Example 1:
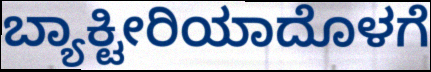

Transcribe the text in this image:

ಬ್ಯಾಕ್ಟೀರಿಯಾದೊಳಗೆ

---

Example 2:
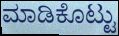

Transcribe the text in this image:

ಮಾಡಿಕೊಟ್ಟು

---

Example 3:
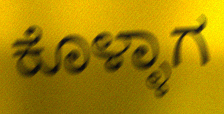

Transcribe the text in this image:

ಕೊಳ್ಳಾಗ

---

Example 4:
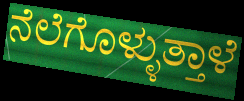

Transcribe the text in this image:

ನೆಲೆಗೊಳ್ಳುತ್ತಾಳೆ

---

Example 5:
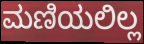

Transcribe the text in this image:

ಮಣಿಯಲಿಲ್ಲ